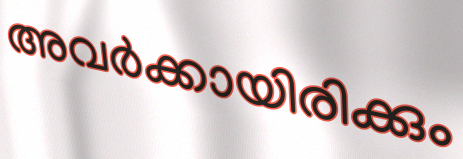
അവർക്കായിരിക്കും